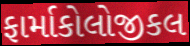
ફાર્માકોલોજીકલ